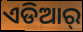
ଏଡିଆର୍